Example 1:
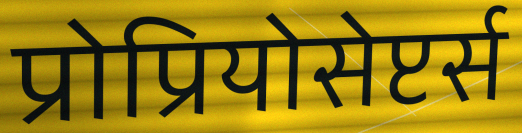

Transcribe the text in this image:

प्रोप्रियोसेप्टर्स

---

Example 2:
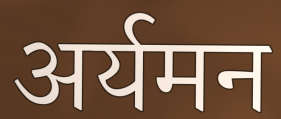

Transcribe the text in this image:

अर्यमन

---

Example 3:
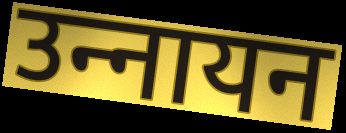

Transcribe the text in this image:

उन्नायन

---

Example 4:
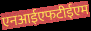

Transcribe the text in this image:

एनआईएफटीईएम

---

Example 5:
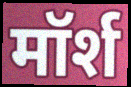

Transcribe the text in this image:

मॉर्श